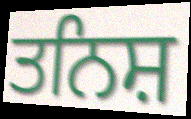
ਤਨਿਸ਼